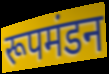
रूपमंडन